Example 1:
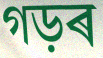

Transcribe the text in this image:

গড়ৰ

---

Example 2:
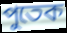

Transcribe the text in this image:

পুতেক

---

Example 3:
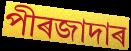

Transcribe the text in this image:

পীৰজাদাৰ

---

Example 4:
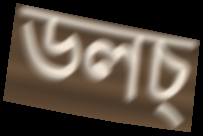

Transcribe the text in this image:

ডলচ্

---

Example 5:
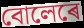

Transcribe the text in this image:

বোলেৰে